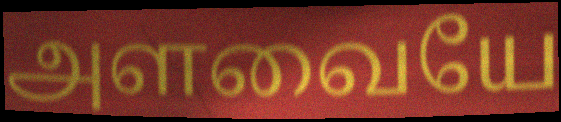
அளவையே